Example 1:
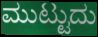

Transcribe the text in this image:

ಮುಟ್ಟುದು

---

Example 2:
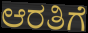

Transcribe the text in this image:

ಆರತಿಗೆ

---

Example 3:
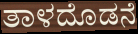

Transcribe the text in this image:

ತಾಳದೊಡನೆ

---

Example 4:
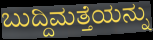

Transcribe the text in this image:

ಬುದ್ದಿಮತ್ತೆಯನ್ನು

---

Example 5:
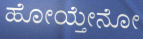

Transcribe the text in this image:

ಹೋಯ್ತೇನೋ